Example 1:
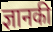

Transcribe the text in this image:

ज्ञानकी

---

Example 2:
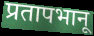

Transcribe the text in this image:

प्रतापभानू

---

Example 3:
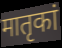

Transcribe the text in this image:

मातृकां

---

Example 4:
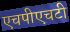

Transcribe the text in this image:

एचपीएचटी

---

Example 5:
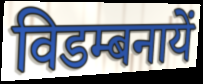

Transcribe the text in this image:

विडम्बनायें